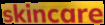
skincare